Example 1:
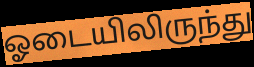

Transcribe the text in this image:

ஓடையிலிருந்து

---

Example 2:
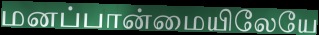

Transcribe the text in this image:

மனப்பான்மையிலேயே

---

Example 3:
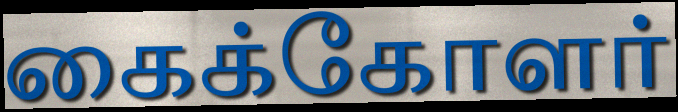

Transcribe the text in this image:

கைக்கோளர்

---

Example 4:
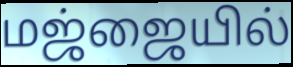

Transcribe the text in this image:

மஜ்ஜையில்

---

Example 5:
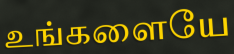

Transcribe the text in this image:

உங்களையே